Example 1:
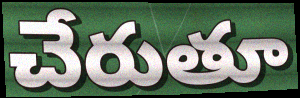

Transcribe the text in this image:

చేరుతూ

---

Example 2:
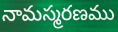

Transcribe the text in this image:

నామస్మరణము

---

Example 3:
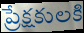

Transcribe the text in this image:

ప్రేక్షకులకి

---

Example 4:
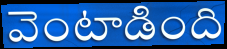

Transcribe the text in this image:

వెంటాడింది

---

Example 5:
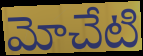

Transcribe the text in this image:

మోచేటి